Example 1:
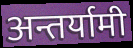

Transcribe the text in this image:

अन्‍तर्यामी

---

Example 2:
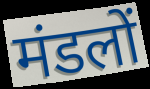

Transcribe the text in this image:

मंडलों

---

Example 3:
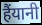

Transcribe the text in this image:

हैंयानी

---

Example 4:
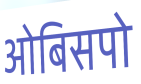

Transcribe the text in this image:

ओबिसपो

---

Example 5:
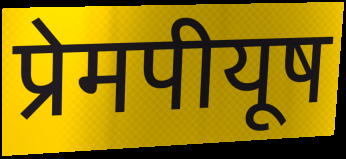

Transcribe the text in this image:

प्रेमपीयूष